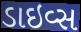
ડાઇવ્સ